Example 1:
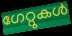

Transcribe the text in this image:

ഗേറ്റുകൾ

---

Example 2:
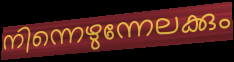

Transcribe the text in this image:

നിന്നെഴുന്നേലക്കും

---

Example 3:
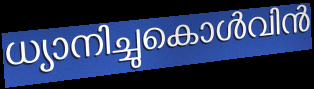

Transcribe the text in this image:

ധ്യാനിച്ചുകൊൾവിൻ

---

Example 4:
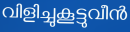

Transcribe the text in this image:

വിളിച്ചുകൂട്ടുവീൻ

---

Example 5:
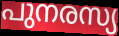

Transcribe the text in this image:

പുനരസ്യ